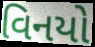
વિનયો